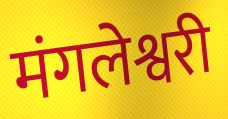
मंगलेश्वरी